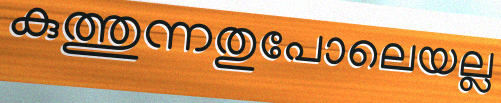
കുത്തുന്നതുപോലെയല്ല